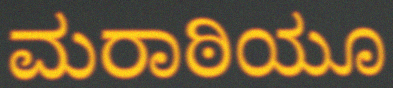
ಮರಾಠಿಯೂ